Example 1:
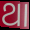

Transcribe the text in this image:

ଥା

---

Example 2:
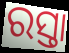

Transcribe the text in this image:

ରସ୍ତା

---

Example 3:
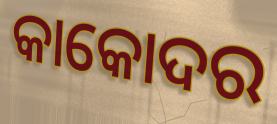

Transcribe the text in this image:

କାକୋଦର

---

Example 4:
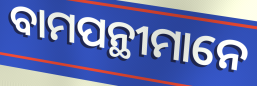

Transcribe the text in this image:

ବାମପନ୍ଥୀମାନେ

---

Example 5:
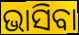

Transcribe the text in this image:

ଭାସିବା